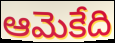
ఆమెకేది